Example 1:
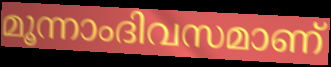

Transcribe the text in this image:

മൂന്നാംദിവസമാണ്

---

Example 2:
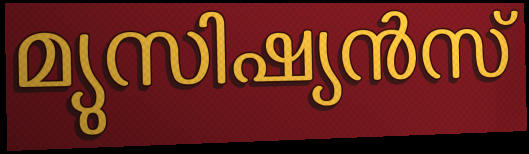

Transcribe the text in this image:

മ്യുസിഷ്യൻസ്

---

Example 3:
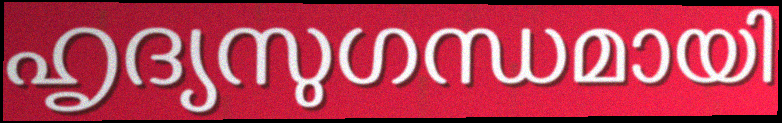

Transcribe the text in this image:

ഹൃദ്യസുഗന്ധമായി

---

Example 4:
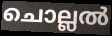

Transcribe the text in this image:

ചൊല്ലൽ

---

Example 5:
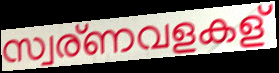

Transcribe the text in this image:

സ്വര്ണവളകള്